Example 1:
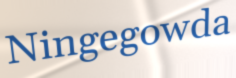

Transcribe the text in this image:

Ningegowda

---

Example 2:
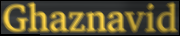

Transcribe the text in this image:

Ghaznavid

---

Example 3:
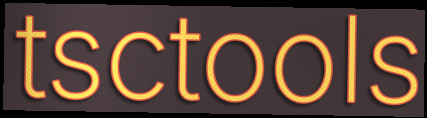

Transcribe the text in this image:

tsctools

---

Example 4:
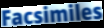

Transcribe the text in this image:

Facsimiles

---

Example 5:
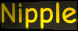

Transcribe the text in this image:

Nipple